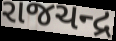
રાજચન્દ્ર